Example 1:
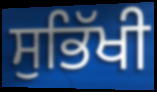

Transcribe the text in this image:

ਸੁਭਿੱਖੀ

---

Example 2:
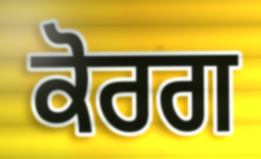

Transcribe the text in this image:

ਕੋਰਗ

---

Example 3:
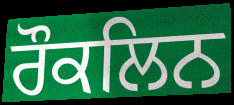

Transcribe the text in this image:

ਰੌਕਲਿਨ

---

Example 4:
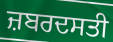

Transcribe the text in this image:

ਜ਼ਬਰਦਸਤੀ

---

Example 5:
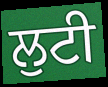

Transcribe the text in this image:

ਲੁਟੀ